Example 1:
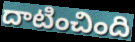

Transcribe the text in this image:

దాటించింది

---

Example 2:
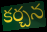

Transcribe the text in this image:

కర్చన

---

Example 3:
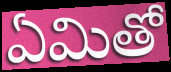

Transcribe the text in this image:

ఏమితో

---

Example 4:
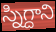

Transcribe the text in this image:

స్నిగ్దాని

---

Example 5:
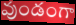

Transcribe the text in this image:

వుండంగా